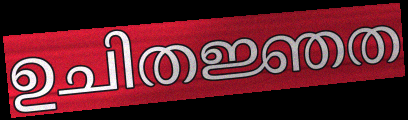
ഉചിതജ്ഞത